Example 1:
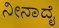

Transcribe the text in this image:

ನೀನಾದೈ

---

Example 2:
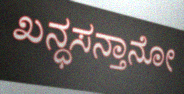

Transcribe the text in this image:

ಖನ್ಧಸನ್ತಾನೋ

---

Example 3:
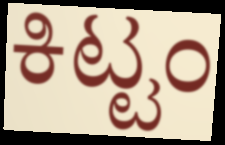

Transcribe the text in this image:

ಕಿಟ್ಟಂ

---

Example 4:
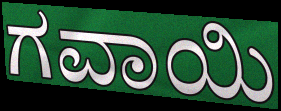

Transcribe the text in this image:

ಗವಾಯಿ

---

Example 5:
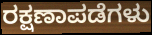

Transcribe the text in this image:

ರಕ್ಷಣಾಪಡೆಗಳು